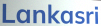
Lankasri